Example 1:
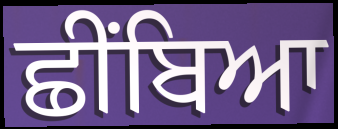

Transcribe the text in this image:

ਛੀਂਬਿਆ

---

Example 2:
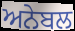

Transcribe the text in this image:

ਅਨੇਬਲ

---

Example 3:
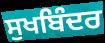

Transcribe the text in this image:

ਸੁਖਬਿੰਦਰ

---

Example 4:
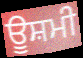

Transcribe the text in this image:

ਊਸ਼ਮੀ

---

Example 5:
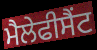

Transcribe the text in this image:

ਮੈਲੇਫੀਸੈਂਟ